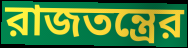
রাজতন্ত্রের